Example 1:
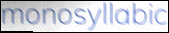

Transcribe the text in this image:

monosyllabic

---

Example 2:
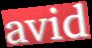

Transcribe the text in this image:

avid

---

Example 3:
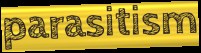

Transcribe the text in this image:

parasitism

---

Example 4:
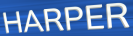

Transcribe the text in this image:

HARPER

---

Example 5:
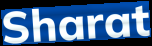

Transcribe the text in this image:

Sharat